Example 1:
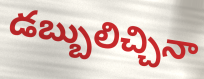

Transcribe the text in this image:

డబ్బులిచ్చినా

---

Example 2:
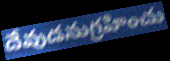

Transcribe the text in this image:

దేవుడనుగ్రహించు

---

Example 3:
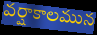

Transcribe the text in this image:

వర్షాకాలమున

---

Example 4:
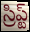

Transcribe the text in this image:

స్రిప్ట్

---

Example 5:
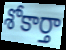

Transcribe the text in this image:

శోకార్తా